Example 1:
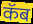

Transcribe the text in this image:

कॅब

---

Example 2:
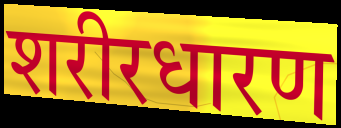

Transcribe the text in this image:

शरीरधारण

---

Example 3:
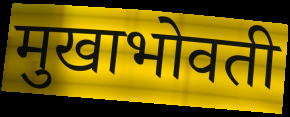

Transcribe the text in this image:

मुखाभोवती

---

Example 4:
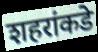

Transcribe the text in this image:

शहरांकडे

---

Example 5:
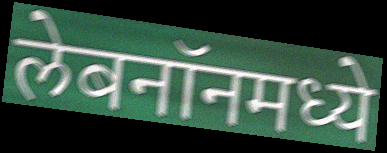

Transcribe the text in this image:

लेबनॉनमध्ये